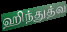
ஹிந்துத்வ